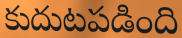
కుదుటపడింది